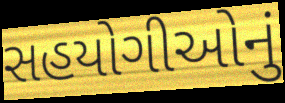
સહયોગીઓનું